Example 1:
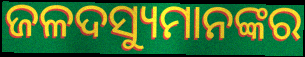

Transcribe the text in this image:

ଜଳଦସ୍ୟୁମାନଙ୍କର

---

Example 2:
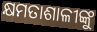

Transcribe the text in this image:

କ୍ଷମତାଶାଳୀଙ୍କୁ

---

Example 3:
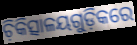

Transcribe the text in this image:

ଚ଼ିକିତ୍ସାଳୟଗୁଡ଼ିକରେ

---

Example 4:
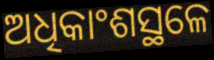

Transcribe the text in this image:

ଅଧିକାଂଶସ୍ଥଳେ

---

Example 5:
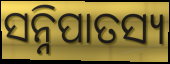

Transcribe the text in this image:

ସନ୍ନିପାତସ୍ୟ